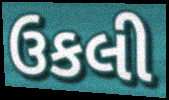
ઉકલી